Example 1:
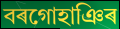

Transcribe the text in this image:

বৰগোহাঞিৰ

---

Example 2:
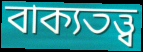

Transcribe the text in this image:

বাক্যতত্ত্ব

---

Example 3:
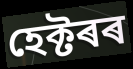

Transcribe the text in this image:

হেক্টৰৰ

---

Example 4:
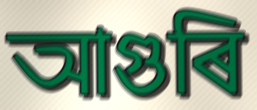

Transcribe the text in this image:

আগুৰি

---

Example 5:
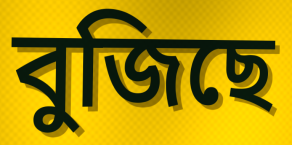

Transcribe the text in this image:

বুজিছে